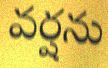
వర్షను